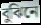
বুঝিনে